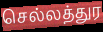
செல்லத்துர